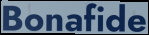
Bonafide